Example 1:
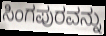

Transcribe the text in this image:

ಸಿಂಗಪುರವನ್ನು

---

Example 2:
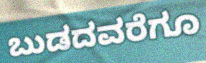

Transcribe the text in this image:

ಬುಡದವರೆಗೂ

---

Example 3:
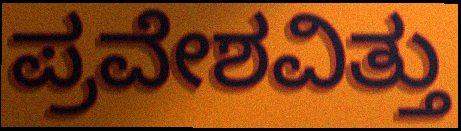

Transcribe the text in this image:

ಪ್ರವೇಶವಿತ್ತು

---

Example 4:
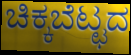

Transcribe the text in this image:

ಚಿಕ್ಕಬೆಟ್ಟದ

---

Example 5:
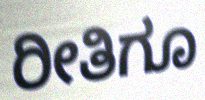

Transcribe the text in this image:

ರೀತಿಗೂ